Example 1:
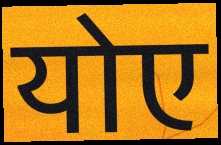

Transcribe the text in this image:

योए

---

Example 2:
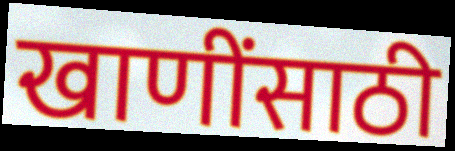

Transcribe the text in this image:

खाणींसाठी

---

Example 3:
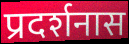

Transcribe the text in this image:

प्रदर्शनास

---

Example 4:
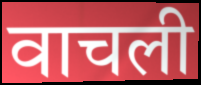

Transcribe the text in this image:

वाचली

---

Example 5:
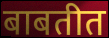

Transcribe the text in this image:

बाबतीत